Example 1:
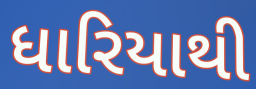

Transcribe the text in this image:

ધારિયાથી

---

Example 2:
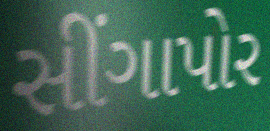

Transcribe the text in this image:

સીંગાપોર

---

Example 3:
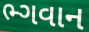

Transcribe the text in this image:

ભ્ગવાન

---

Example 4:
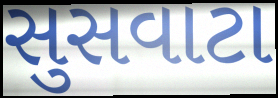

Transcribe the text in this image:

સુસવાટા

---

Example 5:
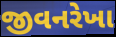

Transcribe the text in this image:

જીવનરેખા